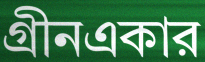
গ্রীনএকার